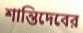
শান্তিদেবের